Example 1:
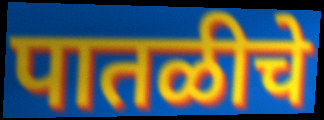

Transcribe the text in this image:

पातळीचे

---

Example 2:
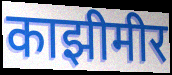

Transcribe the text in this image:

काझीमीर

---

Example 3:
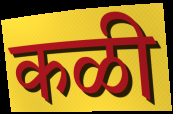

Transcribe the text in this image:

कळी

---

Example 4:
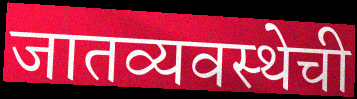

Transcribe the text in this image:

जातव्यवस्थेची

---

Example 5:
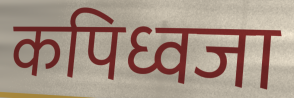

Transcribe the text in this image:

कपिध्वजा